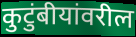
कुटुंबीयांवरील